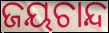
ଜୟଚାନ୍ଦ